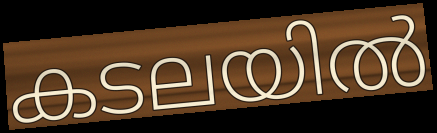
കടലയിൽ